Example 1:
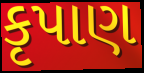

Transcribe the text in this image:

કૃપાણ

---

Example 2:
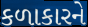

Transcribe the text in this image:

કળાકારને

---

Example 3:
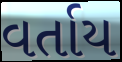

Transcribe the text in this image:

વર્તાય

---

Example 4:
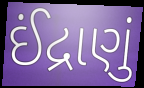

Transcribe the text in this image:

ઈંદ્રાણું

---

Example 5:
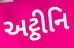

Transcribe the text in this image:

અટ્ઠીનિ